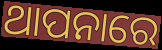
ଥାପନାରେ